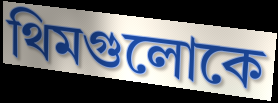
থিমগুলোকে